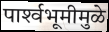
पार्श्‍वभूमीमुळे